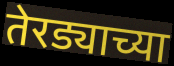
तेरड्याच्या